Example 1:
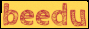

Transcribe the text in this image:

beedu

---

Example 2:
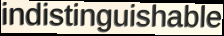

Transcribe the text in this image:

indistinguishable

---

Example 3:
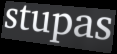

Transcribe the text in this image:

stupas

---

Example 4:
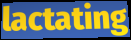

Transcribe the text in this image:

lactating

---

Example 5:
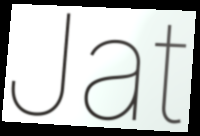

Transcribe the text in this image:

Jat